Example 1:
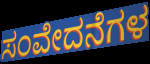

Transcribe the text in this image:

ಸಂವೇದನೆಗಳ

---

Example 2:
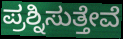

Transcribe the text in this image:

ಪ್ರಶ್ನಿಸುತ್ತೇವೆ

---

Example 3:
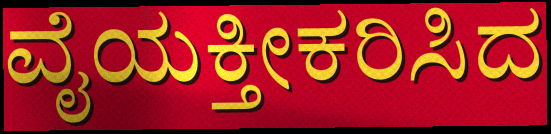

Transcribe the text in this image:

ವೈಯಕ್ತೀಕರಿಸಿದ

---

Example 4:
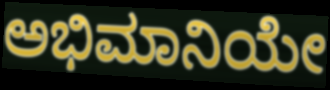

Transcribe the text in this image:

ಅಭಿಮಾನಿಯೇ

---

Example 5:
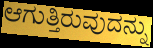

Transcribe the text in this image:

ಆಗುತ್ತಿರುವುದನ್ನು